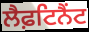
ਲੈਫ਼ਟਿਨੈਂਟ